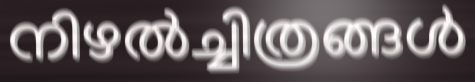
നിഴൽച്ചിത്രങ്ങൾ